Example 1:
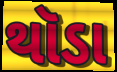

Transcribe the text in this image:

થૉડા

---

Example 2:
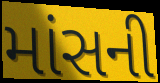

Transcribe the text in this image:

માંસની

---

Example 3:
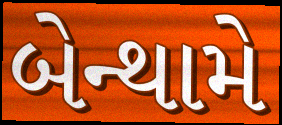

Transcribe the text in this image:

બેન્થામે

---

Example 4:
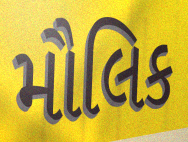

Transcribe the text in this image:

મૌલિક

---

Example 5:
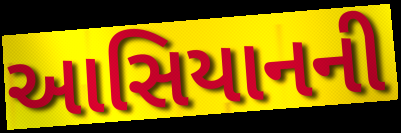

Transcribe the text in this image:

આસિયાનની